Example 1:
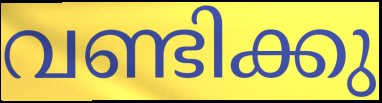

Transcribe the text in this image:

വണ്ടിക്കു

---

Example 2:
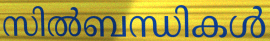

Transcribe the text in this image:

സിൽബന്ധികൾ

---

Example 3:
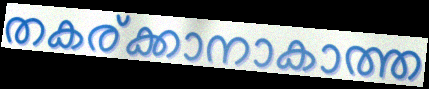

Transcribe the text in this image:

തകര്ക്കാനാകാത്ത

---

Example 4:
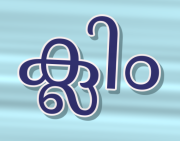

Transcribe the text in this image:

ക്ലിം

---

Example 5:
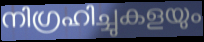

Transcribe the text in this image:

നിഗ്രഹിച്ചുകളയും